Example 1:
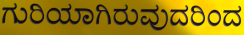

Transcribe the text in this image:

ಗುರಿಯಾಗಿರುವುದರಿಂದ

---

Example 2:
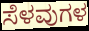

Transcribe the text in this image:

ಸೆಳವುಗಳ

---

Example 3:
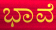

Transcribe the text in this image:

ಭಾವೆ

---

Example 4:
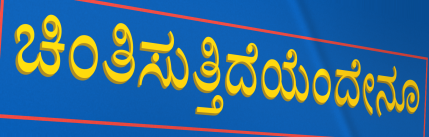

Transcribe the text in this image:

ಚಿಂತಿಸುತ್ತಿದೆಯೆಂದೇನೂ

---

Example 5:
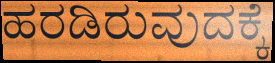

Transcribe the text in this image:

ಹರಡಿರುವುದಕ್ಕೆ